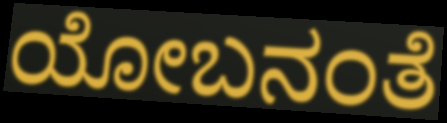
ಯೋಬನಂತೆ